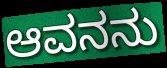
ಆವನನು